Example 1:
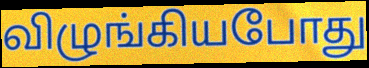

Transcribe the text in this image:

விழுங்கியபோது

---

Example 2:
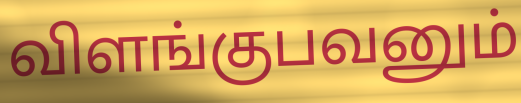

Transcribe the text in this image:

விளங்குபவனும்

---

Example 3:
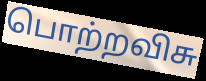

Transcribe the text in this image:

பொற்றவிசு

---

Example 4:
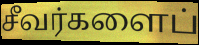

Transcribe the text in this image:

சீவர்களைப்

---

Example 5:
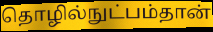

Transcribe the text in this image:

தொழில்நுட்பம்தான்